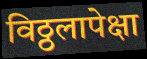
विठ्ठलापेक्षा